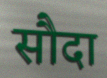
सौदा